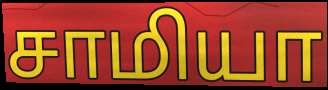
சாமியா